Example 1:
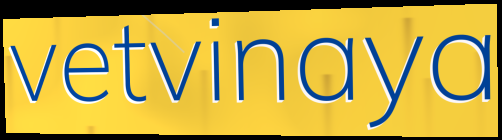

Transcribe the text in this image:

vetvinaya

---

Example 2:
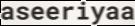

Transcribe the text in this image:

aseeriyaa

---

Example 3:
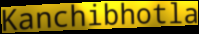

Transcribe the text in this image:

Kanchibhotla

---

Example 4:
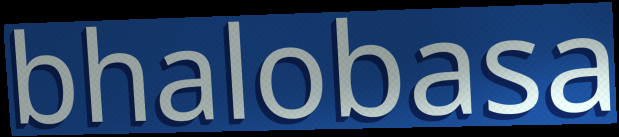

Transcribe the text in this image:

bhalobasa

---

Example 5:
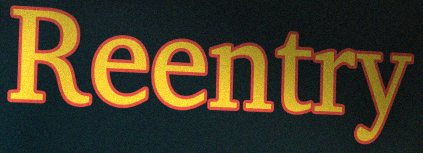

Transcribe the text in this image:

Reentry